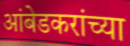
आंबेडकरांच्या